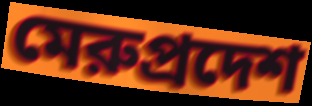
মেরুপ্রদেশ